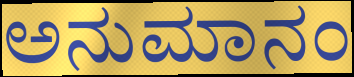
ಅನುಮಾನಂ